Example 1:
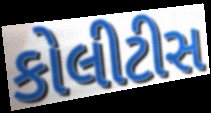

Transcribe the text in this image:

કોલીટીસ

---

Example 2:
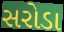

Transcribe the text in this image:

સરોડા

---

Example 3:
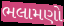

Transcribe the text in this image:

ભલામણો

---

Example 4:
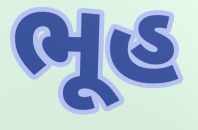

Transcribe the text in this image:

ભૂહ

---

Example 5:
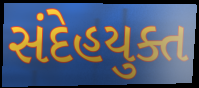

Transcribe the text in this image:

સંદેહયુક્ત